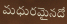
మధురమైనదో